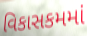
વિકાસકમમાં